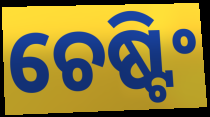
ଚେଷ୍ଟିଂ